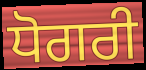
ਧੋਗਰੀ